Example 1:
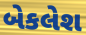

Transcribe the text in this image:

બેકલેશ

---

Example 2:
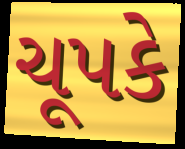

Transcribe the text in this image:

ચૂપકે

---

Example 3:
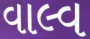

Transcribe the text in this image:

વાલ્વ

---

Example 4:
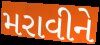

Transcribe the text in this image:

મરાવીને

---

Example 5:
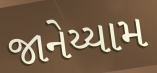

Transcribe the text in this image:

જાનેય્યામ